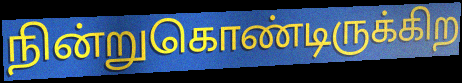
நின்றுகொண்டிருக்கிற